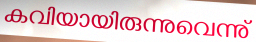
കവിയായിരുന്നുവെന്നു്